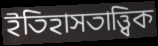
ইতিহাসতাত্ত্বিক